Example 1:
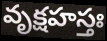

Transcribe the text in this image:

వృక్షహస్తః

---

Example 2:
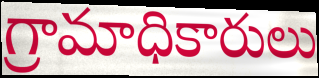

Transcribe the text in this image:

గ్రామాధికారులు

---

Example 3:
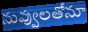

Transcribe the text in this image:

నువ్వులతోనూ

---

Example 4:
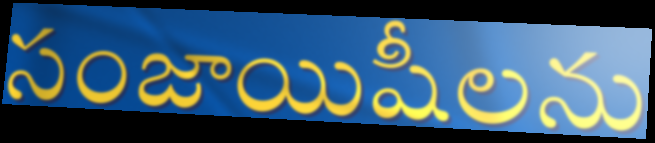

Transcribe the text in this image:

సంజాయిషీలను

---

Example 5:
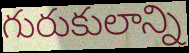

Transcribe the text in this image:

గురుకులాన్ని